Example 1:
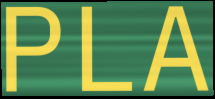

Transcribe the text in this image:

PLA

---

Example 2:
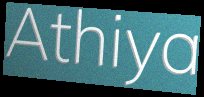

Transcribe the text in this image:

Athiya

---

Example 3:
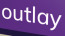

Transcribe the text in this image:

outlay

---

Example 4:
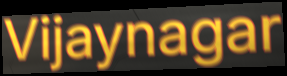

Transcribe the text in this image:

Vijaynagar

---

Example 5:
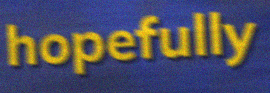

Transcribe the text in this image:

hopefully